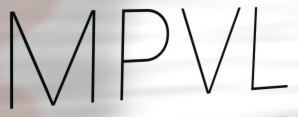
MPVL